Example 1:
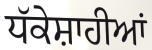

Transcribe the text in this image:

ਧੱਕੇਸ਼ਾਹੀਆਂ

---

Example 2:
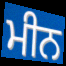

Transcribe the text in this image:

ਮੀਨ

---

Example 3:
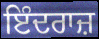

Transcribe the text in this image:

ਇੰਦਰਾਜ਼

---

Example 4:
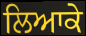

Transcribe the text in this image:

ਲਿਆਕੇ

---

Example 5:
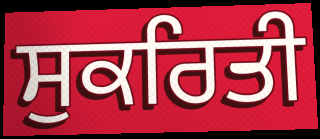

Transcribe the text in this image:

ਸੁਕਰਿਤੀ